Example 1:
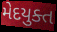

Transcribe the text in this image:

મેદયુક્ત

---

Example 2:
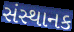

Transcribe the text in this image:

સંસ્થાનક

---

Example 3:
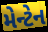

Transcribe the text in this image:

મેન્ટેન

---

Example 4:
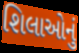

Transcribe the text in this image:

શિલાઓનું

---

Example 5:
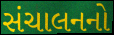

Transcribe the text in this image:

સંચાલનનો